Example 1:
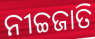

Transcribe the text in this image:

ନୀଚ୍ଚଜାତି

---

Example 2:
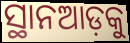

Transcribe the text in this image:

ସ୍ଥାନଆଡ଼କୁ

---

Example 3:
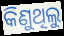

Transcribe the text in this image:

କିଣୁଥିଲୁ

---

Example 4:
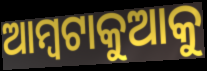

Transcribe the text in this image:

ଆମ୍ବଟାକୁଆକୁ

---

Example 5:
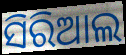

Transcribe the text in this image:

ସିରିଆଲ